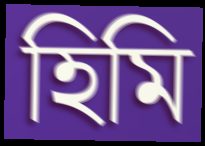
হিমি